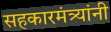
सहकारमंत्र्यांनी